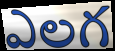
ఎలగ